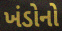
ખંડોનો